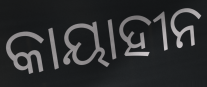
କାୟାହୀନ